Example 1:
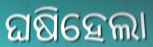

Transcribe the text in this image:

ଘଷିହେଲା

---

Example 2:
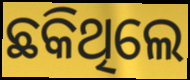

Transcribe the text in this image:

ଛକିଥିଲେ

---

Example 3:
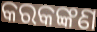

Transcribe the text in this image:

କରକଙ୍କଣ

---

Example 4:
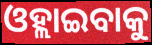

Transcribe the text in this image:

ଓହ୍ଲାଇବାକୁ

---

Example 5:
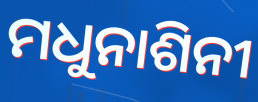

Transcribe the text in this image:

ମଧୁନାଶିନୀ